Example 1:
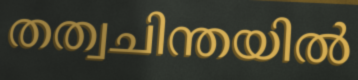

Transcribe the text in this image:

തത്വചിന്തയിൽ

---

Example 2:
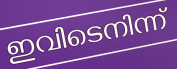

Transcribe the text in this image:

ഇവിടെനിന്ന്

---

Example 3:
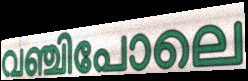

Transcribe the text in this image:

വഞ്ചിപോലെ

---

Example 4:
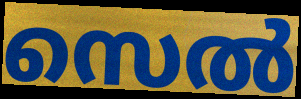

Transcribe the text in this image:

സെൽ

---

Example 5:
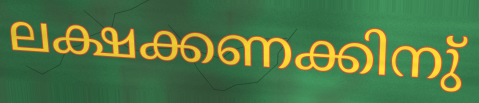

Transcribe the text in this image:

ലക്ഷക്കണക്കിനു്